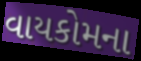
વાયકોમના